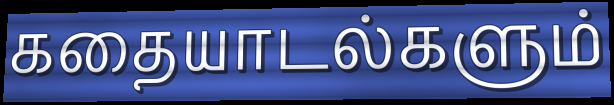
கதையாடல்களும்